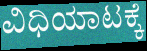
ವಿಧಿಯಾಟಕ್ಕೆ